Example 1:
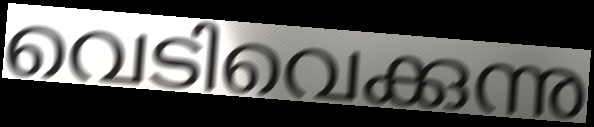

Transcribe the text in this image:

വെടിവെക്കുന്നു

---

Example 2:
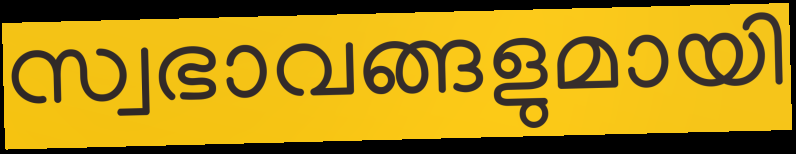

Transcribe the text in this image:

സ്വഭാവങ്ങളുമായി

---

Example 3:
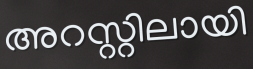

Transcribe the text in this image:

അറസ്റ്റിലായി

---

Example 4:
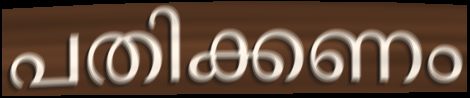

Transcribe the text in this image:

പതിക്കണം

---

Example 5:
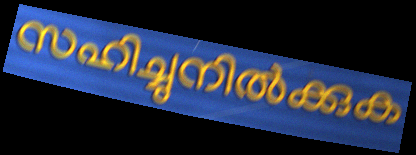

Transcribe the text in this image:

സഹിച്ചുനിൽക്കുക